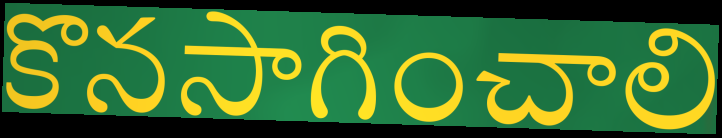
కొనసాగించాలి